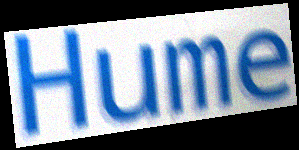
Hume